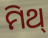
ମିଥ୍